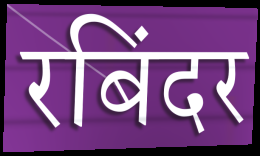
रबिंदर